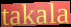
takala